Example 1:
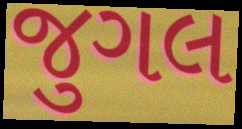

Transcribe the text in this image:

જુગલ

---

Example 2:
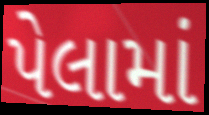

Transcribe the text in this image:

પેલામાં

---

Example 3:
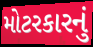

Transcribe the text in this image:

મોટરકારનું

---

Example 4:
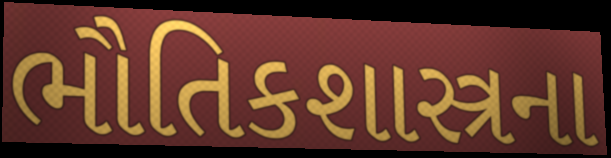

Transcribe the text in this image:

ભૌતિકશાસ્ત્રના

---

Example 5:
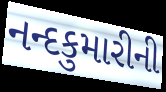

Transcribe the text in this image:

નન્દકુમારીની